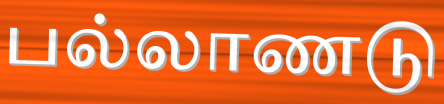
பல்லாணடு